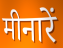
मीनारें